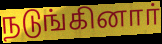
நடுங்கினார்